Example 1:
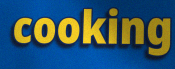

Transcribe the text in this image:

cooking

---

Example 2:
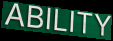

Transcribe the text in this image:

ABILITY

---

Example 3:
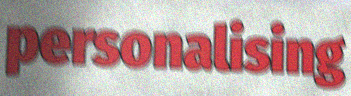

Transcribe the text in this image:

personalising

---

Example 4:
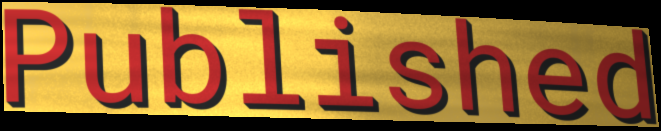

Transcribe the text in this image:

Published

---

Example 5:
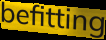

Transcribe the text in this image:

befitting